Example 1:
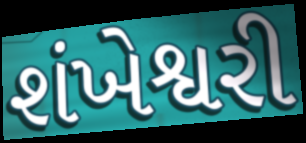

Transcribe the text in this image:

શંખેશ્વરી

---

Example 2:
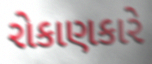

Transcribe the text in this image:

રોકાણકારે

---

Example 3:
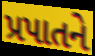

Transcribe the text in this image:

પ્રપાતને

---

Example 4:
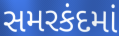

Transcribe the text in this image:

સમરકંદમાં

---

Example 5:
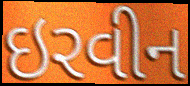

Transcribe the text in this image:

ઇરવીન